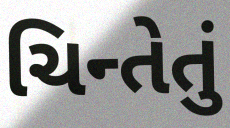
ચિન્તેતું